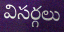
విసర్గలు